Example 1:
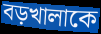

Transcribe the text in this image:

বড়খালাকে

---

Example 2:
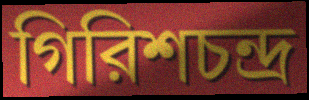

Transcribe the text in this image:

গিরিশচন্দ্র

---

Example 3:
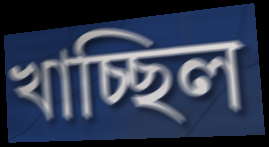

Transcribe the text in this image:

খাচ্ছিল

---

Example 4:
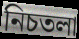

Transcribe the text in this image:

নিচতলা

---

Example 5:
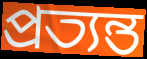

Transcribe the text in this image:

প্রত্যন্ত